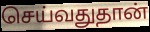
செய்வதுதான்